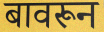
बावरून